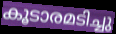
കൂടാരമടിച്ചു